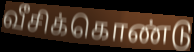
வீசிக்கொண்டு